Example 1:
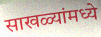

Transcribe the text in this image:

साखळ्यांमध्ये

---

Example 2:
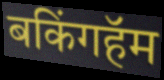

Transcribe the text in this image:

बकिंगहॅम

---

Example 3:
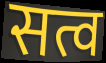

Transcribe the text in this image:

सत्व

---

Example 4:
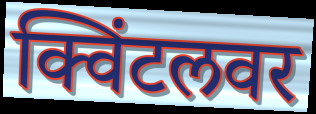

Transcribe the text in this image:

क्विंटलवर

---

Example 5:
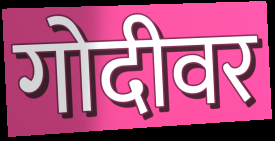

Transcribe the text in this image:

गोदीवर